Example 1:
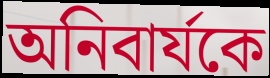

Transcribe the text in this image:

অনিবার্যকে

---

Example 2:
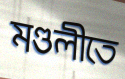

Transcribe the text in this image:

মণ্ডলীতে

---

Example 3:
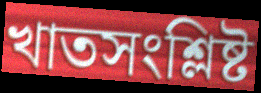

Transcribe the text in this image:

খাতসংশ্লিষ্ট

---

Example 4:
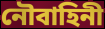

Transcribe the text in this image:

নৌবাহিনী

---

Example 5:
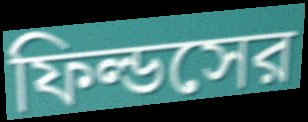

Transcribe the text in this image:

ফিল্ডসের